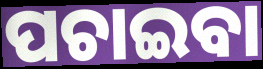
ପଚାଇବା